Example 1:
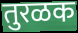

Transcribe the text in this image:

तुरळक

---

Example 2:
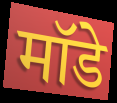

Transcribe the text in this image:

मॉडे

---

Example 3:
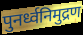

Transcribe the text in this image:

पुनर्ध्वनिमुद्रण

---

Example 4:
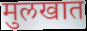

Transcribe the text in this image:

मुलखात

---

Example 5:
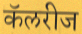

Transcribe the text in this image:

कॅलरीज